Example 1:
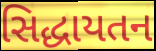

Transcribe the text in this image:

સિદ્ધાયતન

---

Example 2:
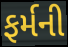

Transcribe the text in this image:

ફર્મની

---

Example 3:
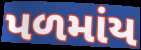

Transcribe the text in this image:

પળમાંય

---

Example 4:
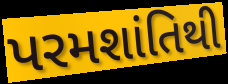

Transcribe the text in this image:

પરમશાંતિથી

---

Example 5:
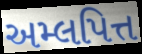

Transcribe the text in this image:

અમ્લપિત્ત